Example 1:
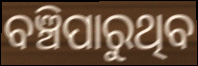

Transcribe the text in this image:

ବଞ୍ଚିପାରୁଥିବ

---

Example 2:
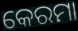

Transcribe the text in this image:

କେରମା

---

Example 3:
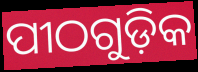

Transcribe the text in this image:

ପୀଠଗୁଡ଼ିକ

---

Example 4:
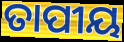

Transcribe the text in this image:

ତାପୀୟ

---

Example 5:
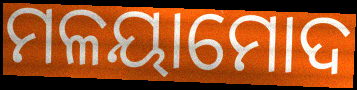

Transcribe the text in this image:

ମଳୟାମୋଦ